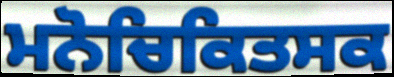
ਮਨੋਚਿਕਿਤਸਕ